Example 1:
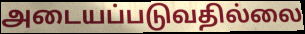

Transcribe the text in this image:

அடையப்படுவதில்லை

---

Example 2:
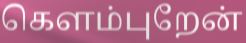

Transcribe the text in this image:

கெளம்புறேன்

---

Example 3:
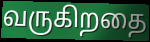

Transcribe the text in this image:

வருகிறதை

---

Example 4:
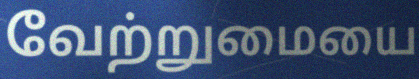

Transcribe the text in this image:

வேற்றுமையை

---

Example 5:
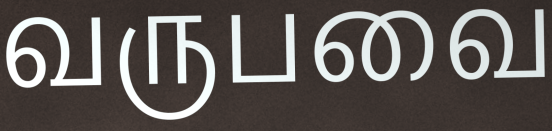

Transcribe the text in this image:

வருபவை